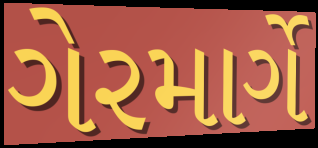
ગેરમાર્ગે